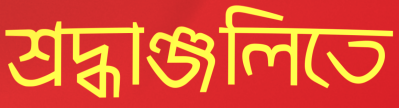
শ্রদ্ধাঞ্জলিতে